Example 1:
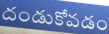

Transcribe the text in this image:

దండుకోవడం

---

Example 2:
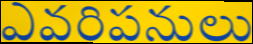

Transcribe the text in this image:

ఎవరిపనులు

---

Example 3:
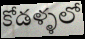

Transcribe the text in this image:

కోడళ్ళలో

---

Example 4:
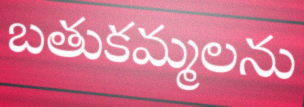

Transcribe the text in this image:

బతుకమ్మలను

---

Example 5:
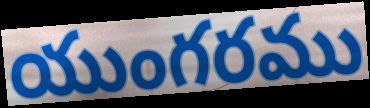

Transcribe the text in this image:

యుంగరము